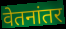
वेतनांतर